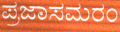
ಪ್ರಜಾಸಮರಂ